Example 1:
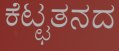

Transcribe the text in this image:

ಕೆಟ್ಟತನದ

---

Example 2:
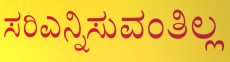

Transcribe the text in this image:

ಸರಿಎನ್ನಿಸುವಂತಿಲ್ಲ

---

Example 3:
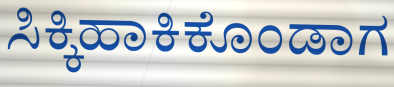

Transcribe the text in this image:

ಸಿಕ್ಕಿಹಾಕಿಕೊಂಡಾಗ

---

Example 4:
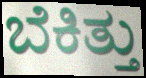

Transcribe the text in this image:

ಬೆಕಿತ್ತು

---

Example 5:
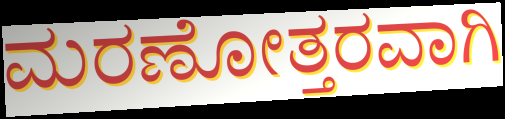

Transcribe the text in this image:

ಮರಣೋತ್ತರವಾಗಿ